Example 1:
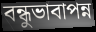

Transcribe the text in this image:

বন্ধুভাবাপন্ন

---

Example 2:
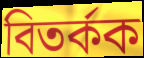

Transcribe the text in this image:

বিতৰ্কক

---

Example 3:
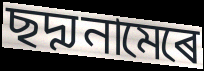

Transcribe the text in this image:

ছদ্মনামেৰে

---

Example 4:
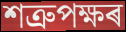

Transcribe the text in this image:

শত্ৰুপক্ষৰ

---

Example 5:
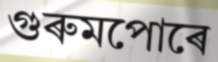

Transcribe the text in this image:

গুৰুমপোৰে